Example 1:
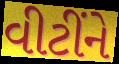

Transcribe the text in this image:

વીટીંને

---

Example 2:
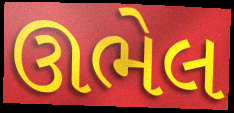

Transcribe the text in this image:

ઊભેલ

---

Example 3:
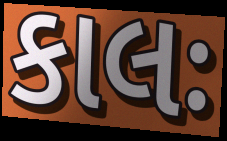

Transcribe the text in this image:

કાલઃ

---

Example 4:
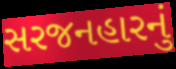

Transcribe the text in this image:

સરજનહારનું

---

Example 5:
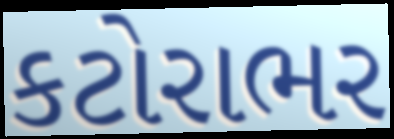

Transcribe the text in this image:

કટોરાભર